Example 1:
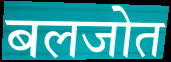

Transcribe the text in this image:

बलजोत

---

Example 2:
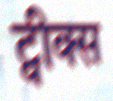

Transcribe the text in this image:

ट्वीक्स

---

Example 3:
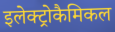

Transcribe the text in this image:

इलेक्ट्रोकैमिकल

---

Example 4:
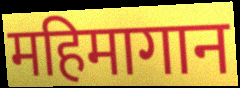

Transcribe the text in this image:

महिमागान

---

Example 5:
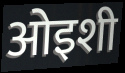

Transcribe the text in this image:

ओइशी